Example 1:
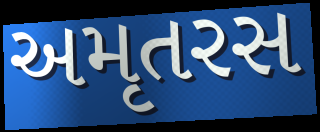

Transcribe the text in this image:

અમૃતરસ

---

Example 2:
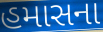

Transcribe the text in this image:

હમાસના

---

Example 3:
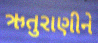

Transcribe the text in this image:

ઋતુરાણીને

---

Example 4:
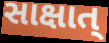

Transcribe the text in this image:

સાક્ષાત્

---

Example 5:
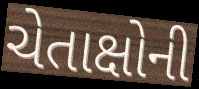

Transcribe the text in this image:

ચેતાક્ષોની